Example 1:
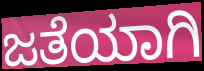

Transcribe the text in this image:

ಜತೆಯಾಗಿ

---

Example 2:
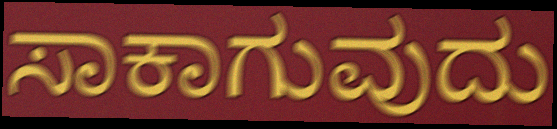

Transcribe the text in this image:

ಸಾಕಾಗುವುದು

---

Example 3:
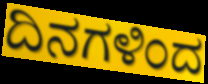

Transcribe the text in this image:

ದಿನಗಳಿಂದ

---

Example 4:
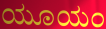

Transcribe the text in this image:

ಯೂಯಂ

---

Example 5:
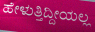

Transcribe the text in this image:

ಹೇಳುತ್ತಿದ್ದೀಯಲ್ಲ